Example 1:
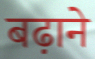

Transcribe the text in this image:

बढ़ाने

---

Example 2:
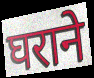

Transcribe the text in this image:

घराने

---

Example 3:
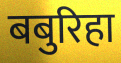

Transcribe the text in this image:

बबुरिहा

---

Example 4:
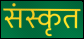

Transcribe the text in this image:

संस्कृत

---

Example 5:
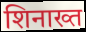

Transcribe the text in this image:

शिनाख्त